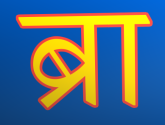
ब्रा